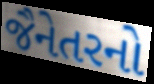
જૈનેતરનો